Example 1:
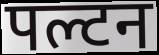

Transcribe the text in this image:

पल्टन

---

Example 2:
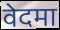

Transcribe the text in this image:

वेदमा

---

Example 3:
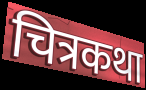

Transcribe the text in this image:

चित्रकथा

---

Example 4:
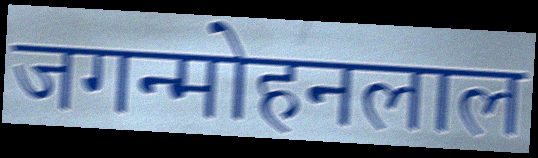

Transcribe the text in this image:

जगन्मोहनलाल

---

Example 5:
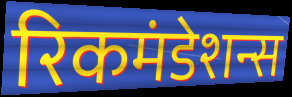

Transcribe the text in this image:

रिकमंडेशन्स